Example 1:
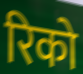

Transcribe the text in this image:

रिको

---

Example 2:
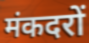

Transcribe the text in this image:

मंकदरों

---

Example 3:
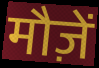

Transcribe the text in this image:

मौज़ें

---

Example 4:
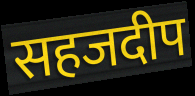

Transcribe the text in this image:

सहजदीप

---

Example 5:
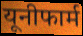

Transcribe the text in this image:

यूनीफार्म